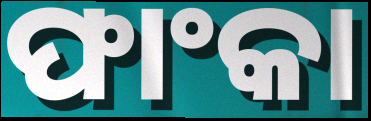
ଫାଂକା